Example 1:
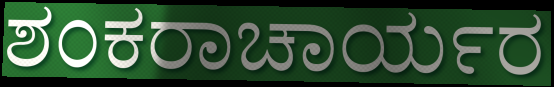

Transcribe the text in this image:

ಶಂಕರಾಚಾರ್ಯರ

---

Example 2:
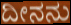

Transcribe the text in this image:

ದೀನನು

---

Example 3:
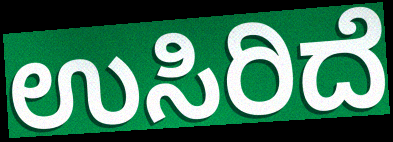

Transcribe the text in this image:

ಉಸಿರಿದೆ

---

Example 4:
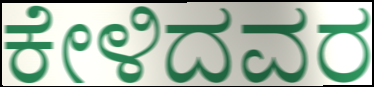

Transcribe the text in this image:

ಕೇಳಿದವರ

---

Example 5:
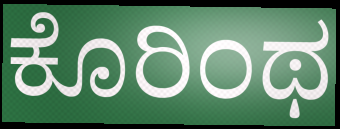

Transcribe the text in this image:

ಕೊರಿಂಥ